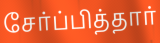
சேர்ப்பித்தார்